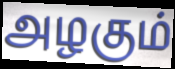
அழகும்